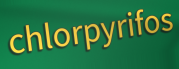
chlorpyrifos